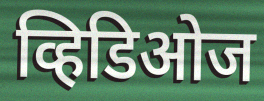
व्हिडिओज